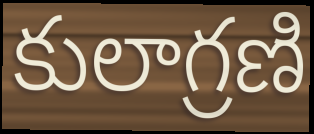
కులాగ్రణి